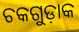
ଚକଗୁଡ଼ାକ